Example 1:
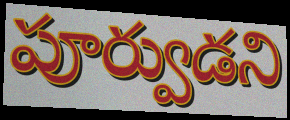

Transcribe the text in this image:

పూర్వుడని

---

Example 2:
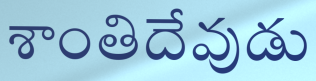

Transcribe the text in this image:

శాంతిదేవుడు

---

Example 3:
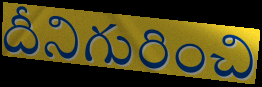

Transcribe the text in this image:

దీనిగురించి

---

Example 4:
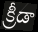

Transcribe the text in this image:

క్రీడా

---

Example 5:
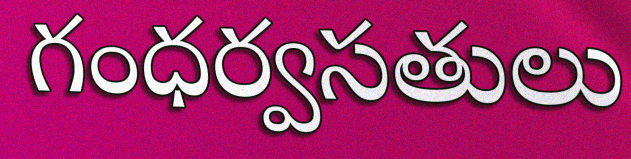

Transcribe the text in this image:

గంధర్వసతులు